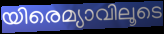
യിരെമ്യാവിലൂടെ